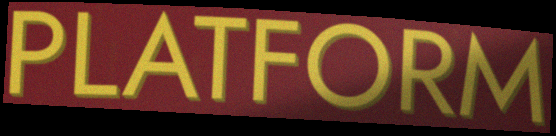
PLATFORM